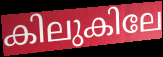
കിലുകിലേ